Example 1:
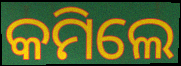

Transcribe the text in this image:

କମିଲେ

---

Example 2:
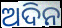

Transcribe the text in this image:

ଅଦିନ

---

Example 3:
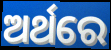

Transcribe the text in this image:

ଅର୍ଥରେ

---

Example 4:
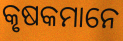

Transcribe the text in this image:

କୃଷକମାନେ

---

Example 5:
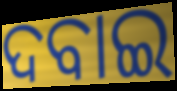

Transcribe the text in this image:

ଦବାଇ